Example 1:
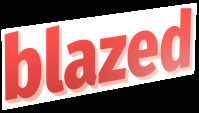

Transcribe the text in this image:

blazed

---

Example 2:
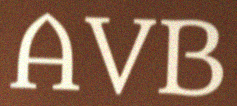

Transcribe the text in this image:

AVB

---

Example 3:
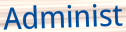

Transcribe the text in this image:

Administ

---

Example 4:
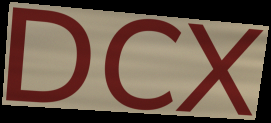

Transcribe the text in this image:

DCX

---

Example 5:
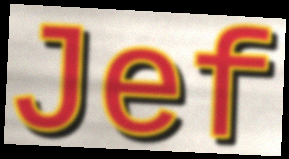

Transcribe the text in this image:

Jef